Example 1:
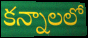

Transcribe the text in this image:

కన్నాలలో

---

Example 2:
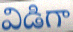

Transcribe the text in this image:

విడిగా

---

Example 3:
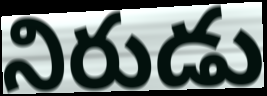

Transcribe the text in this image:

నిరుడు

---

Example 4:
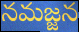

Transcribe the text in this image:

నమజ్జన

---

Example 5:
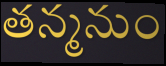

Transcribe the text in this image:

తన్మనుం